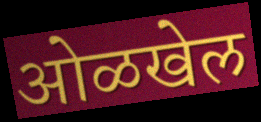
ओळखेल